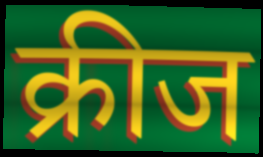
क्रीज